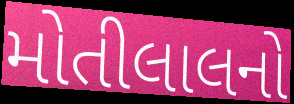
મોતીલાલનો